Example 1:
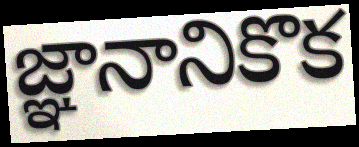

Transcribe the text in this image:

జ్ఞానానికొక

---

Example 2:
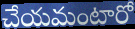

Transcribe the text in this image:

చేయమంటారో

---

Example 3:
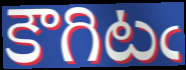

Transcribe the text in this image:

కౌగిటఁ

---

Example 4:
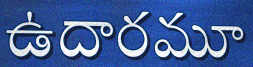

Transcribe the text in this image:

ఉదారమూ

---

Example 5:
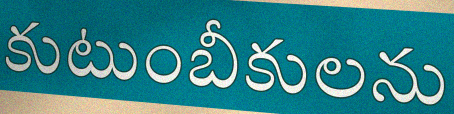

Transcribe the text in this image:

కుటుంబీకులను